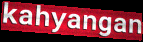
kahyangan